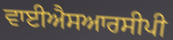
ਵਾਈਐਸਆਰਸੀਪੀ